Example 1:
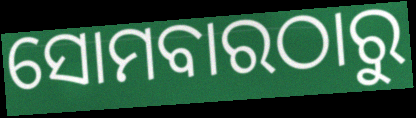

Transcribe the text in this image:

ସୋମବାରଠାରୁ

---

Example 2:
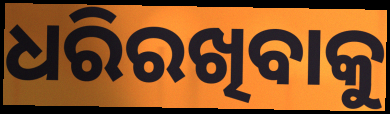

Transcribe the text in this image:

ଧରିରଖିବାକୁ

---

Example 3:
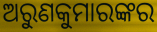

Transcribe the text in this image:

ଅରୁଣକୁମାରଙ୍କର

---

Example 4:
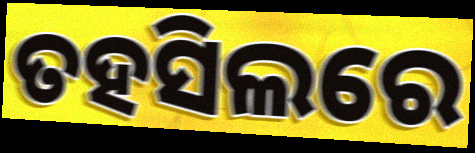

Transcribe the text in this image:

ତହସିଲରେ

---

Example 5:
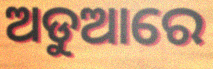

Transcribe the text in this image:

ଅଡୁଆରେ